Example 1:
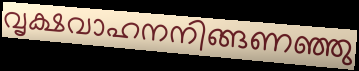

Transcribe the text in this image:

വൃക്ഷവാഹനനിങ്ങണഞ്ഞു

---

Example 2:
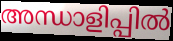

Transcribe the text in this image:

അന്ധാളിപ്പിൽ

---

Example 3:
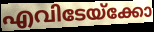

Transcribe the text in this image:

എവിടേയ്ക്കോ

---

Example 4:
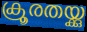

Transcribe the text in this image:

ക്രൂരതയ്ക്കു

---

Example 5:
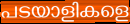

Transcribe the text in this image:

പടയാളികളെ